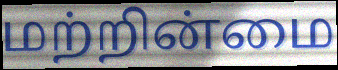
மற்றின்மை